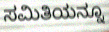
ಸಮಿತಿಯನ್ನೂ